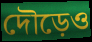
দৌড়েও